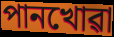
পানখোৱা